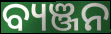
ବ୍ୟଞ୍ଜନ